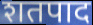
शतपाद